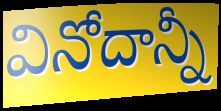
వినోదాన్నీ